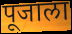
पूजाला